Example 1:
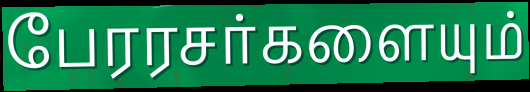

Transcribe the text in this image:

பேரரசர்களையும்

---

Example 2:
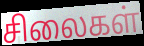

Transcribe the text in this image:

சிலைகள்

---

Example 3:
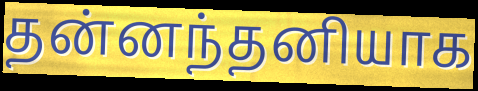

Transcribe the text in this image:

தன்னந்தனியாக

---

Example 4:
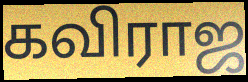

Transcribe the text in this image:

கவிராஜ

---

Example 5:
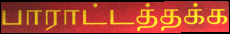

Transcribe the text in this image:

பாராட்டத்தக்க